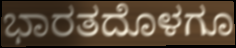
ಭಾರತದೊಳಗೂ